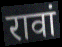
रावां